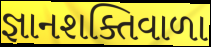
જ્ઞાનશક્તિવાળા